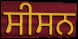
ਸੀਸਨ